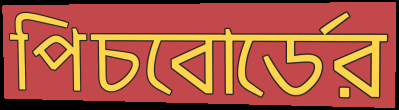
পিচবোর্ডের